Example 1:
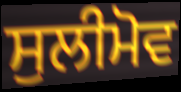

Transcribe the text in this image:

ਸੁਲੀਮੋਵ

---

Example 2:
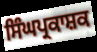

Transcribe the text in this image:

ਸਿੰਘਪ੍ਰਕਾਸ਼ਕ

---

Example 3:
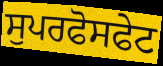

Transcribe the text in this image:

ਸੁਪਰਫੋਸਫੇਟ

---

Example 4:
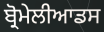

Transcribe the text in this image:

ਬ੍ਰੋਮੇਲੀਆਡਸ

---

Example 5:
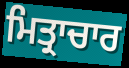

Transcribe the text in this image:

ਮਿਤ੍ਰਾਚਾਰ